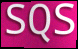
SQS